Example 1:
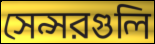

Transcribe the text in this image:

সেন্সরগুলি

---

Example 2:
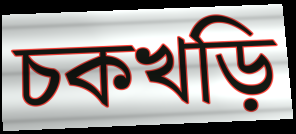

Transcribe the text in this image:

চকখড়ি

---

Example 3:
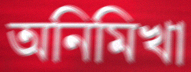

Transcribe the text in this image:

অনিমিখা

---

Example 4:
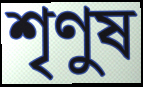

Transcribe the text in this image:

শৃণুষ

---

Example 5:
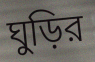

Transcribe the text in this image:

ঘুড়ির